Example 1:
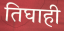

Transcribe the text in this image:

तिघाही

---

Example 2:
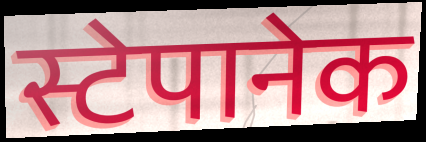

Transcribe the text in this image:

स्टेपानेक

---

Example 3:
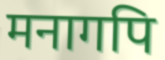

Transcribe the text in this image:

मनागपि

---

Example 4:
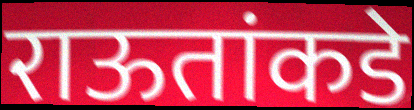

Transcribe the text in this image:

राऊतांकडे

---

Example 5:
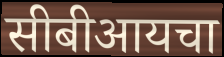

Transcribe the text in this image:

सीबीआयचा